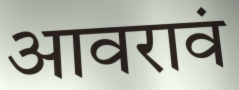
आवरावं